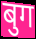
बुग